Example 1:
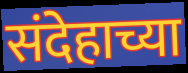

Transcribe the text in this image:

संदेहाच्या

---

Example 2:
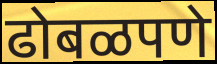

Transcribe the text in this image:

ढोबळपणे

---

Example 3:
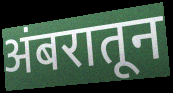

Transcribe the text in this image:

अंबरातून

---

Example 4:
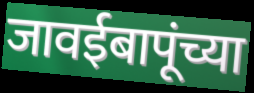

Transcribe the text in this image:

जावईबापूंच्या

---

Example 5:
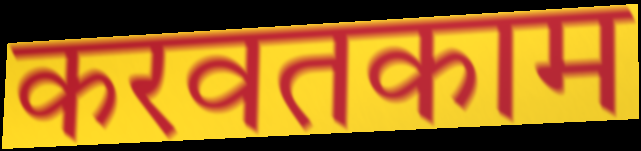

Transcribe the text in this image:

करवतकाम